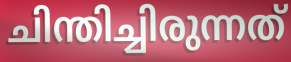
ചിന്തിച്ചിരുന്നത്